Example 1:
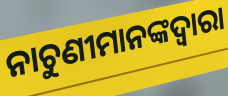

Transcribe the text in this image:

ନାଚୁଣୀମାନଙ୍କଦ୍ୱାରା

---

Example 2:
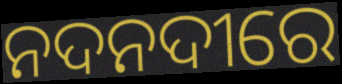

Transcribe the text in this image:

ନଦନଦୀରେ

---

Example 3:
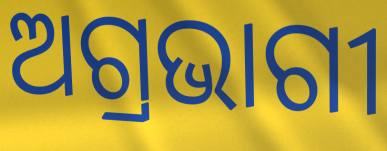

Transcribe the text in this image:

ଅଗ୍ରଭାଗୀ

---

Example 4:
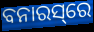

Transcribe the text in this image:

ବନାରସ୍‌ରେ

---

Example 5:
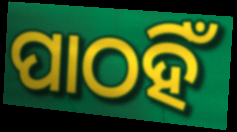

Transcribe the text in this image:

ପାଠହିଁ